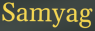
Samyag